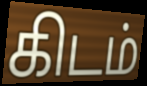
கிடம்